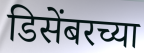
डिसेंबरच्या